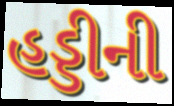
હડ્ડીની